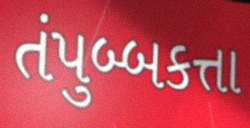
તંપુબ્બકત્તા